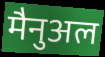
मैनुअल